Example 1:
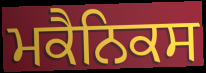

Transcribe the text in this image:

ਮਕੈਨਿਕਸ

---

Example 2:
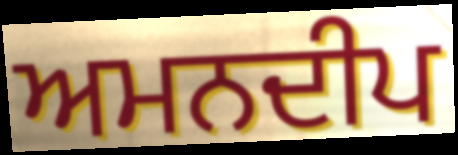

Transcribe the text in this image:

ਅਮਨਦੀਪ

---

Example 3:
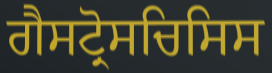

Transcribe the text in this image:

ਗੈਸਟ੍ਰੋਸਚਿਸਿਸ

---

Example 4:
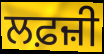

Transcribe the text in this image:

ਲਫ਼ਜ਼ੀ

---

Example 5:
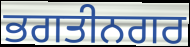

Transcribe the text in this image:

ਭਗਤੀਨਗਰ